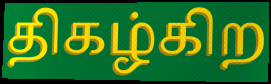
திகழ்கிற